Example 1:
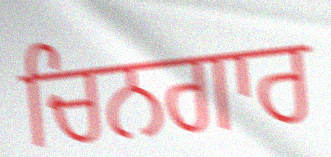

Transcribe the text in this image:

ਚਿਨਗਾਰ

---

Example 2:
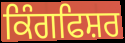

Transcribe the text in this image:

ਕਿੰਗਫਿਸ਼ਰ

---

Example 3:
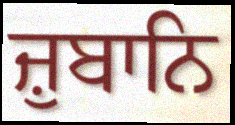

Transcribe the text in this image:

ਜ਼ੁਬਾਨਿ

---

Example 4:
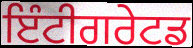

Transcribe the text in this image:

ਇੰਟੀਗਰੇਟਡ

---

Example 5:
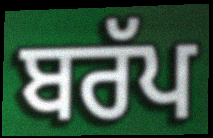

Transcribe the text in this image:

ਬਰੱਪ